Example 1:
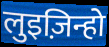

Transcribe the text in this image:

लुइज़िन्हो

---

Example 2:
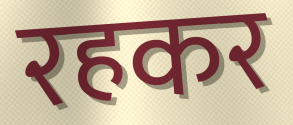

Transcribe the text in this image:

रहकर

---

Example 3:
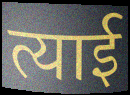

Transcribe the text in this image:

त्याई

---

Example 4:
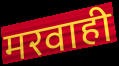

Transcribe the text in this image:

मरवाही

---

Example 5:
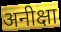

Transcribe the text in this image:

अनीक्षा